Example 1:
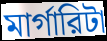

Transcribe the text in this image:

মার্গারিটা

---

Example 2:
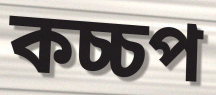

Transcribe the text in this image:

কচ্চপ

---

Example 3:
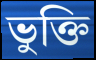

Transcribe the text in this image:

ভুক্তি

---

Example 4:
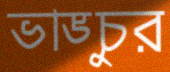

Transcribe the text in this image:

ভাঙ্চুর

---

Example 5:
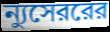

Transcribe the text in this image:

ন্যুসেররের